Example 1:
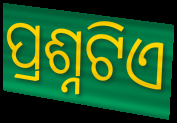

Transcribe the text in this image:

ପ୍ରଶ୍ନଟିଏ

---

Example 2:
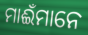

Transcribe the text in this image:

ମାଈଁମାନେ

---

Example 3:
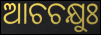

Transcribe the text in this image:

ଆଚଚକ୍ଷୁଃ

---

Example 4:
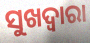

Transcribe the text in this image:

ସୁଖଦ୍ଵାରା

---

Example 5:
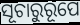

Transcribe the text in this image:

ସୂଚାରୁରୂପେ